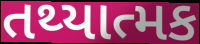
તથ્યાત્મક